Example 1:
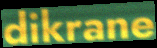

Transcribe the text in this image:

dikrane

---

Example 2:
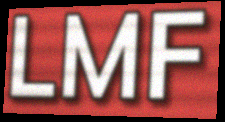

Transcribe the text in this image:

LMF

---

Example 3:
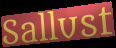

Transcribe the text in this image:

Sallust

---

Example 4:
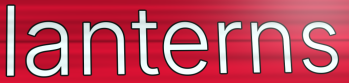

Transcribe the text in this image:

lanterns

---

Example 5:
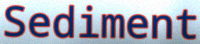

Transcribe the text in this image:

Sediment